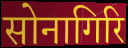
सोनागिरि